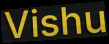
Vishu